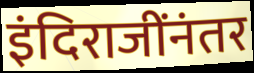
इंदिराजींनंतर